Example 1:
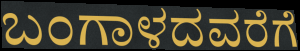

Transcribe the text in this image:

ಬಂಗಾಳದವರೆಗೆ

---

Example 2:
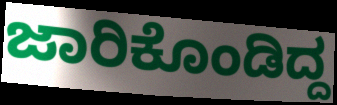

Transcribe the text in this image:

ಜಾರಿಕೊಂಡಿದ್ದ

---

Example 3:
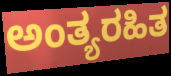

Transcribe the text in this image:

ಅಂತ್ಯರಹಿತ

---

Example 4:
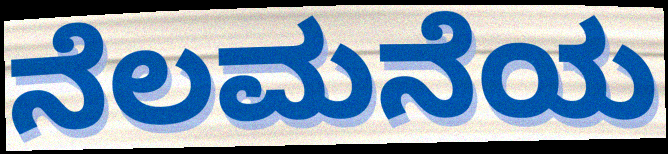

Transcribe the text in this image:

ನೆಲಮನೆಯ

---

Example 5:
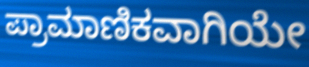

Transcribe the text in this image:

ಪ್ರಾಮಾಣಿಕವಾಗಿಯೇ